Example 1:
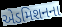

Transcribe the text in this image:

એડમિશનના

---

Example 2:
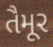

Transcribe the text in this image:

તૈમૂર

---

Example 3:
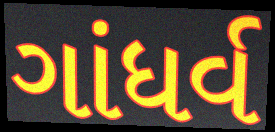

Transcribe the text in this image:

ગાંધર્વ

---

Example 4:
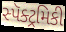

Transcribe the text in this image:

સ્પૅક્ટ્રમિકી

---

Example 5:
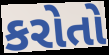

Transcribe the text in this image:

કરોતો